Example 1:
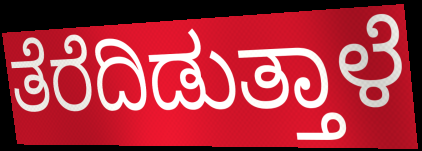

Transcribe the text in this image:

ತೆರೆದಿಡುತ್ತಾಳೆ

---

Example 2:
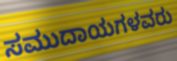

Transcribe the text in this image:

ಸಮುದಾಯಗಳವರು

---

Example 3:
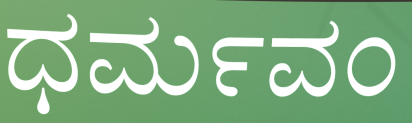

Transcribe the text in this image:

ಧರ್ಮವಂ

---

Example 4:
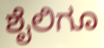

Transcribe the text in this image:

ಶೈಲಿಗೂ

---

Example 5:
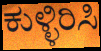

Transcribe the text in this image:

ಕುಳ್ಳಿರಿಸಿ